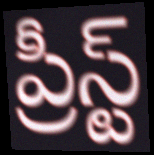
ప్రీస్ట్